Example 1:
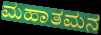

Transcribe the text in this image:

ಮಹಾತಮನ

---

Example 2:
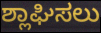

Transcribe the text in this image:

ಶ್ಲಾಘಿಸಲು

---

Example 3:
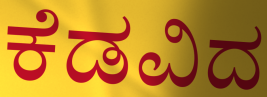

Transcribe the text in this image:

ಕೆಡವಿದ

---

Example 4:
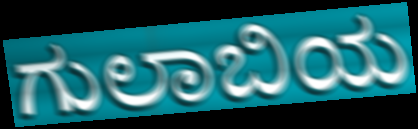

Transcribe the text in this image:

ಗುಲಾಬಿಯ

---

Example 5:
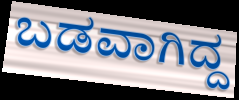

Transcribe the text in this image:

ಬಡವಾಗಿದ್ದ